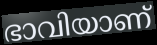
ഭാവിയാണ്